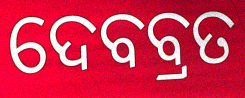
ଦେବବ୍ରତ